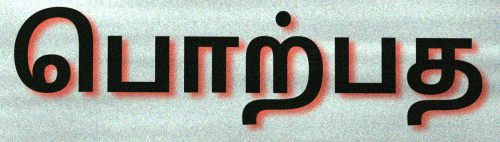
பொற்பத